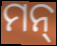
ମନ୍